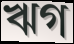
ঋগ